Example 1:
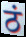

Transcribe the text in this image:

ठं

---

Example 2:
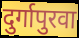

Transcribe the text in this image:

दुर्गापुरवा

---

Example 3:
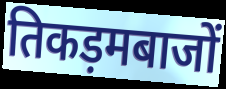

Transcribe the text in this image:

तिकड़मबाजों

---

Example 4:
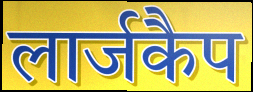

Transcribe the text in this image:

लार्जकैप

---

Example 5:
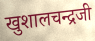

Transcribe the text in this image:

खुशालचन्द्रजी